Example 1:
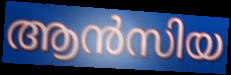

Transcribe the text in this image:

ആൻസിയ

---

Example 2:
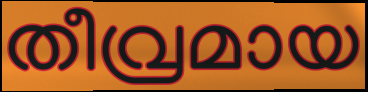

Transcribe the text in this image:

തീവ്രമായ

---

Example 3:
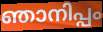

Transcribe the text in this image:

ഞാനിപ്പം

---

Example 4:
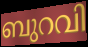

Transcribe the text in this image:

ബുറവി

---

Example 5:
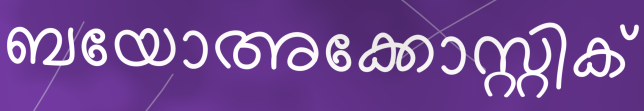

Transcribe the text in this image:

ബയോഅക്കോസ്റ്റിക്